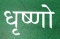
धृष्णो